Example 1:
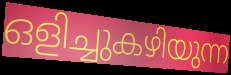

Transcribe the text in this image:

ഒളിച്ചുകഴിയുന്ന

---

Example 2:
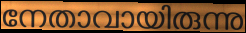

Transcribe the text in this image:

നേതാവായിരുന്നു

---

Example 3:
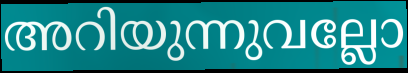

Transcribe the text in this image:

അറിയുന്നുവല്ലോ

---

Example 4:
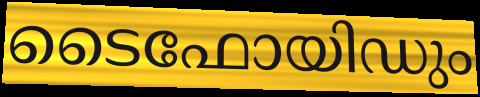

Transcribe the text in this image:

ടൈഫോയിഡും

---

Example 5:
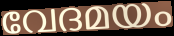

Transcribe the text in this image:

വേദമയം